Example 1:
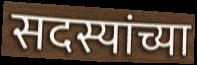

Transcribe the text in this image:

सदस्यांच्या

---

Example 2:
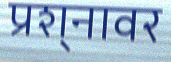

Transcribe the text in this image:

प्रश्नावर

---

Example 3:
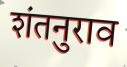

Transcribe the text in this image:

शंतनुराव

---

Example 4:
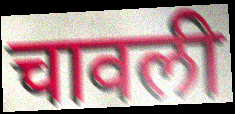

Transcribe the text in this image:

चावली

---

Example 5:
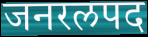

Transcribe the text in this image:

जनरलपद